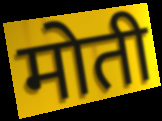
मोती